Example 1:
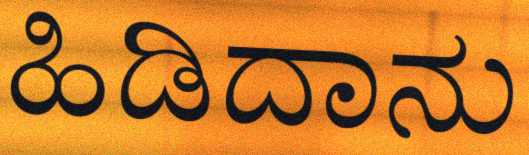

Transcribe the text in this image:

ಹಿಡಿದಾನು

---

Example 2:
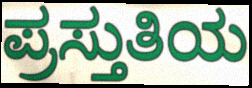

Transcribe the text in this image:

ಪ್ರಸ್ತುತಿಯ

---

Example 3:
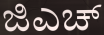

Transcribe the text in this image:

ಜಿಎಚ್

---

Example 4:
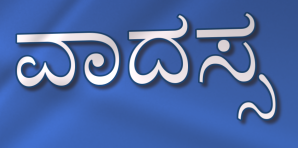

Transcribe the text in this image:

ವಾದಸ್ಸ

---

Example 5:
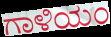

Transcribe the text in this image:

ಗಾಳಿಯಂ